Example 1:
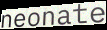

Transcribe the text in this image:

neonate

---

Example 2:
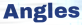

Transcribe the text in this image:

Angles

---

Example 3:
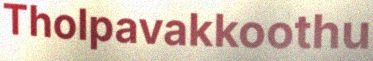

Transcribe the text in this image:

Tholpavakkoothu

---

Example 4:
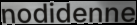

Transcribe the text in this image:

nodidenne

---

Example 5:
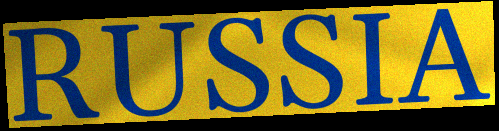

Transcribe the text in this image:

RUSSIA